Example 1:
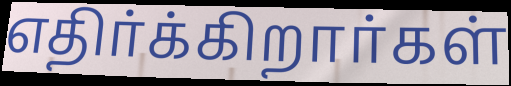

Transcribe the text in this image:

எதிர்க்கிறார்கள்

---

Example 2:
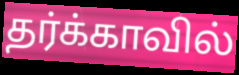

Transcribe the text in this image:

தர்க்காவில்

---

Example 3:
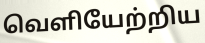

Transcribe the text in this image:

வெளியேற்றிய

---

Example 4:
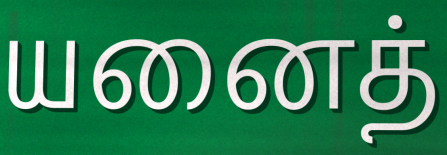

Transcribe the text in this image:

யனைத்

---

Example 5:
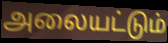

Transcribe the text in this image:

அலையட்டும்